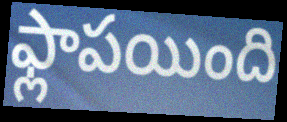
ఫ్లాపయింది